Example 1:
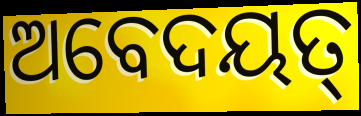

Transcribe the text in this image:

ଅବେଦୟତ୍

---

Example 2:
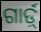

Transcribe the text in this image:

ଗାର୍ଡ଼୍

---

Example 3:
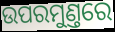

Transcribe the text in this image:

ଉପରମୁଣ୍ତରେ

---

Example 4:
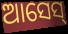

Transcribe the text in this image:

ଆସେସ୍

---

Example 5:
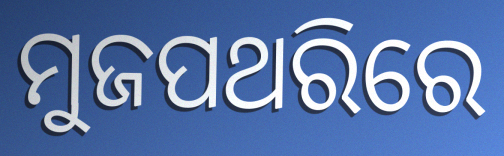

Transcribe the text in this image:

ମୁଜପଥରିରେ